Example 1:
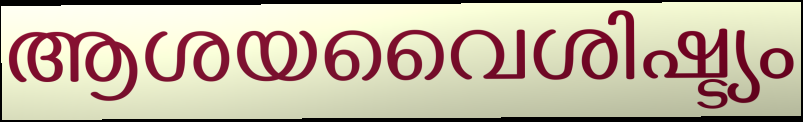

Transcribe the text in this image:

ആശയവൈശിഷ്ട്യം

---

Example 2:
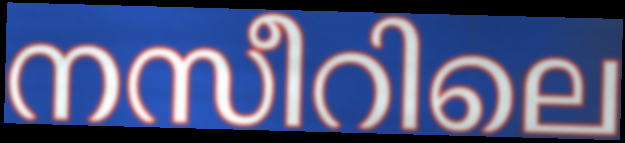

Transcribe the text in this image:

നസീറിലെ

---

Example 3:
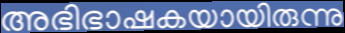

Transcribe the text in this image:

അഭിഭാഷകയായിരുന്നു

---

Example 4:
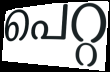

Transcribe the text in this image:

പെറ്റ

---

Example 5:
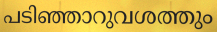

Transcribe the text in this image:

പടിഞ്ഞാറുവശത്തും